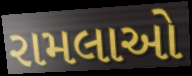
રામલાઓ